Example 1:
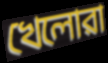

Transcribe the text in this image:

খেলোৱা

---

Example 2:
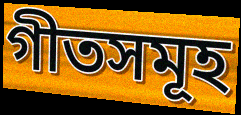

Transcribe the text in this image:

গীতসমূহ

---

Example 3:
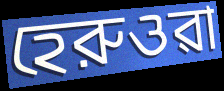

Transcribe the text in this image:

হেৰুওৱা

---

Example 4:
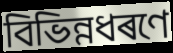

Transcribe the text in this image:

বিভিন্নধৰণে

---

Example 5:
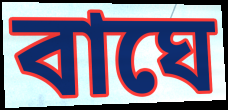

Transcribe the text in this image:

বাঘে